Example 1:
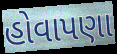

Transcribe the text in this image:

હોવાપણા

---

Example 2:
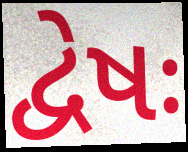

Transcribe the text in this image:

દ્વેષઃ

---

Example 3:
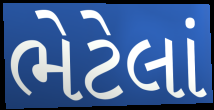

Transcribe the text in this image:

ભેટેલાં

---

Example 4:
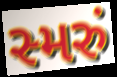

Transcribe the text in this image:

સ્મરું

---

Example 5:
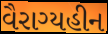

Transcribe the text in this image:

વૈરાગ્યહીન